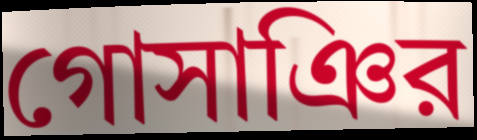
গোসাঞির